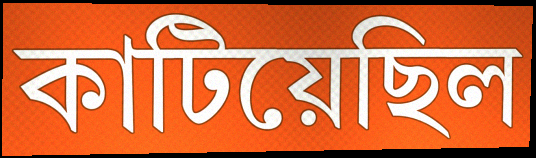
কাটিয়েছিল